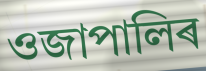
ওজাপালিৰ